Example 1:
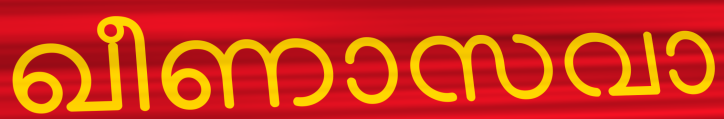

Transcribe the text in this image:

ഖീണാസവാ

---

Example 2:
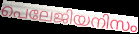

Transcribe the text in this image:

പെലേജിയനിസം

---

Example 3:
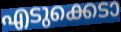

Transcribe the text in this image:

എടുക്കെടാ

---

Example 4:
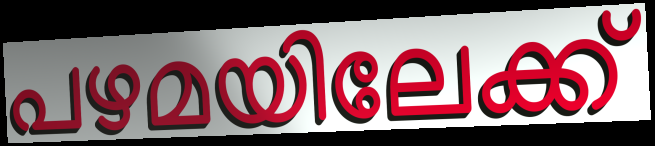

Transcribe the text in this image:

പഴമയിലേക്ക്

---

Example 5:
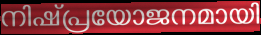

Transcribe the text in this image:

നിഷ്പ്രയോജനമായി